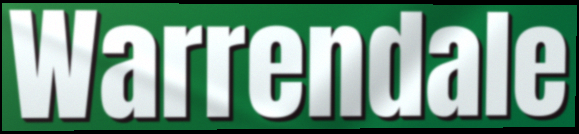
Warrendale